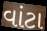
વાંટા